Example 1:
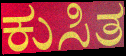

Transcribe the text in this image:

ಕುಸಿತ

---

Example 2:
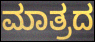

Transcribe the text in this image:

ಮಾತ್ರದ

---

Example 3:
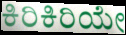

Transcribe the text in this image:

ಕಿರಿಕಿರಿಯೇ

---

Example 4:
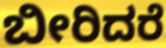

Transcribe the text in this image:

ಬೀರಿದರೆ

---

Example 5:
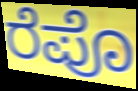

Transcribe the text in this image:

ರೆಪೊ